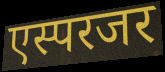
एस्परजर